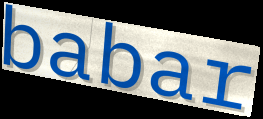
babar